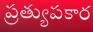
ప్రత్యుపకార